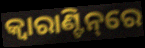
କ୍ବାରାଣ୍ଟିନ୍‌ରେ